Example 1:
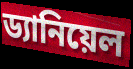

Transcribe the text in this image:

ড্যানিয়েল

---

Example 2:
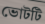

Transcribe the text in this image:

ভোটটি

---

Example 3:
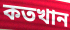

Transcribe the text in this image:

কতখান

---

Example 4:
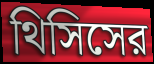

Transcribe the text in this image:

থিসিসের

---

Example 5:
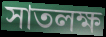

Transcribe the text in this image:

সাতলক্ষ